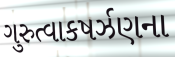
ગુરુત્વાકષર્ઝણના